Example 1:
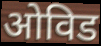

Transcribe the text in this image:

ओविड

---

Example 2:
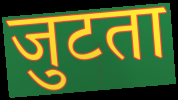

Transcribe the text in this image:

जुटता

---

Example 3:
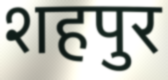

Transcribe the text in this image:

शहपुर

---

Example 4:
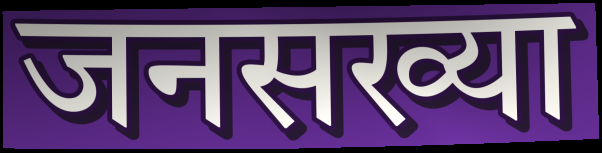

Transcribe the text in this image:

जनसख्या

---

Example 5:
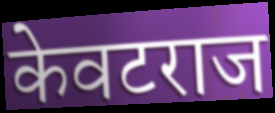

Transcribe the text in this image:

केवटराज